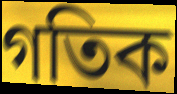
গতিক